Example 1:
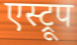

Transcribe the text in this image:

एस्ट्रूप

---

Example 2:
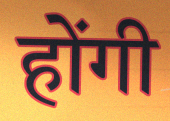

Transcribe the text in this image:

होंगी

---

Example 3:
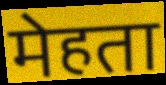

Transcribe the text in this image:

मेहता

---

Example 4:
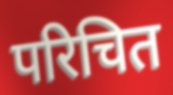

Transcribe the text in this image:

परिचित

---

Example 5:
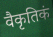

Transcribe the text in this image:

वैकृतिकं